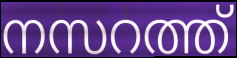
നസറത്ത്